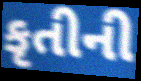
કૃતીની